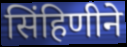
सिंहिणीने